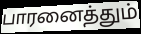
பாரனைத்தும்